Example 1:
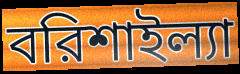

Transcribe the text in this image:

বরিশাইল্যা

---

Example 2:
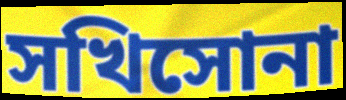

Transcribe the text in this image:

সখিসোনা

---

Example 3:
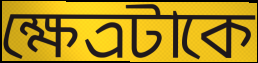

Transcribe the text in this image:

ক্ষেত্রটাকে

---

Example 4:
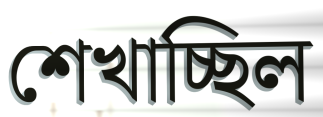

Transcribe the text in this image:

শেখাচ্ছিল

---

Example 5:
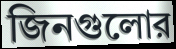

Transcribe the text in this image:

জিনগুলোর